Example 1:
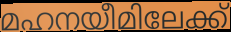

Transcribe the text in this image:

മഹനയീമിലേക്ക്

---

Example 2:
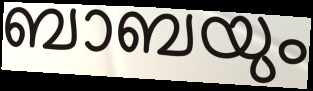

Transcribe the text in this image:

ബാബയും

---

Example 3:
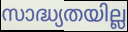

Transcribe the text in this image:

സാദ്ധ്യതയില്ല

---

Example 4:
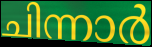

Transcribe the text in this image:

ചിന്നാർ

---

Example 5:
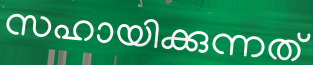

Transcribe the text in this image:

സഹായിക്കുന്നത്